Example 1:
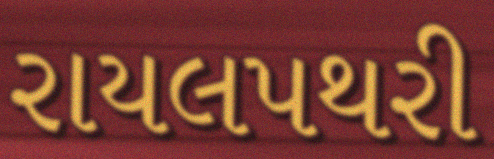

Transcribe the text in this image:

રાયલપથરી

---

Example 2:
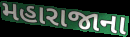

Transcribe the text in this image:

મહારાજાના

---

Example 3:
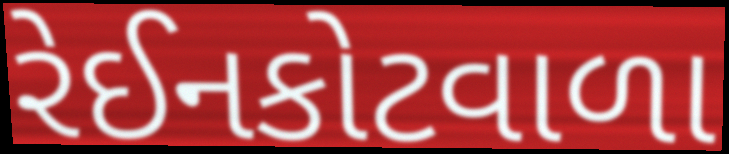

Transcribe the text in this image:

રેઈનકોટવાળા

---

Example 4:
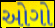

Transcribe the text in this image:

ઓગો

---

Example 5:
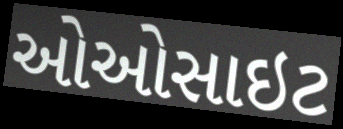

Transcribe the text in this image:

ઓઓસાઇટ